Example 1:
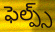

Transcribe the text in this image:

ఫెల్ప్స్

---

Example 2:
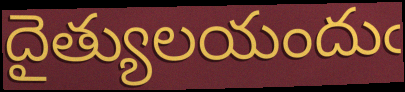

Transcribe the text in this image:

దైత్యులయందుఁ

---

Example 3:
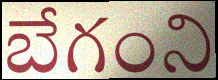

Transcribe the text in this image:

బేగంని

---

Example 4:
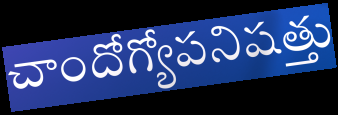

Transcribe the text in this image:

చాందోగ్యోపనిషత్తు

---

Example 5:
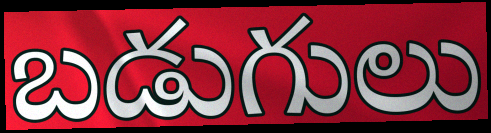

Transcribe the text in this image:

బడుగులు